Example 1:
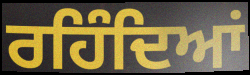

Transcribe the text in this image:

ਰਹਿੰਦਿਆਂ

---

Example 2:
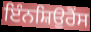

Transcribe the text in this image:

ਇੰਨਸ਼ਿਉਰੈਂਸ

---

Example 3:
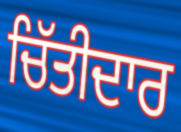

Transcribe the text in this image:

ਚਿੱਤੀਦਾਰ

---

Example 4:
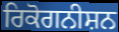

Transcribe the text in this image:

ਰਿਕੋਗਨੀਸ਼ਨ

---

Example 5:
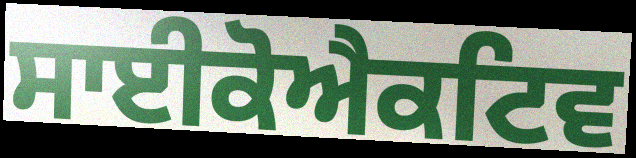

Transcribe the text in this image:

ਸਾਈਕੋਐਕਟਿਵ